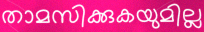
താമസിക്കുകയുമില്ല